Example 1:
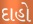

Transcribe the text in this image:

દાહો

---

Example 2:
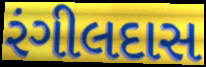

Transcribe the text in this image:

રંગીલદાસ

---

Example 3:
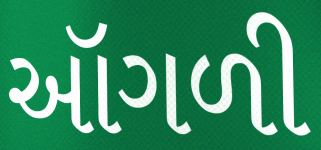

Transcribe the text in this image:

ઑગળી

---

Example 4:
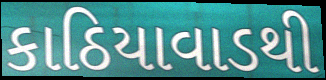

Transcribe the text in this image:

કાઠિયાવાડથી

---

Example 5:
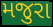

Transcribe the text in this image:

મજુરા